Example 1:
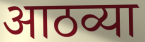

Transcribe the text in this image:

आठव्या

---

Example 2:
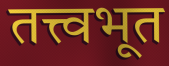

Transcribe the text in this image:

तत्त्वभूत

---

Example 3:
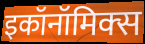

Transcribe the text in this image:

इकॉनॉमिक्‍स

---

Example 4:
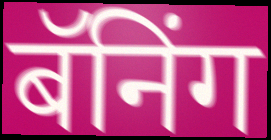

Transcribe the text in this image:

बॅनिंग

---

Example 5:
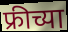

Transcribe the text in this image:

फ्रीच्या